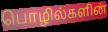
பொழில்களின்